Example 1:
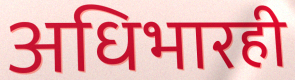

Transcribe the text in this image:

अधिभारही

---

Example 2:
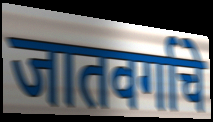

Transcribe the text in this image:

जातवर्गाचे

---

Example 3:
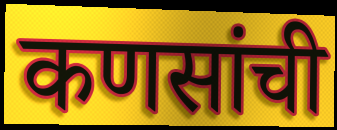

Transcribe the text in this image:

कणसांची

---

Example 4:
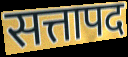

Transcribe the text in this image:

सत्तापद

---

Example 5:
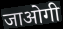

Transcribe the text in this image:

जाओगी